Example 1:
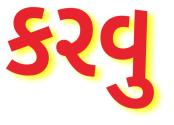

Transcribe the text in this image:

કરવુ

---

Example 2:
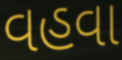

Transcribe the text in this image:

વહવા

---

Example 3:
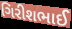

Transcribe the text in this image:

ગિરીશભાઈ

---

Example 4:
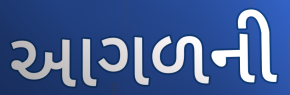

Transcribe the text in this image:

આગળની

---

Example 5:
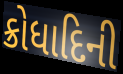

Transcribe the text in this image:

ક્રોધાદિની